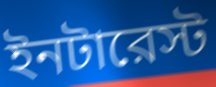
ইনটারেস্ট